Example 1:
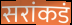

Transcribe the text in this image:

सरांकडं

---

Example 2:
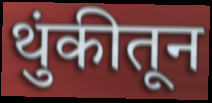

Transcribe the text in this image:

थुंकीतून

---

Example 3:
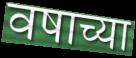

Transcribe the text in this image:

वषाच्या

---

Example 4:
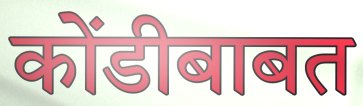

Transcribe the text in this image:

कोंडीबाबत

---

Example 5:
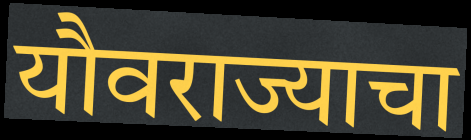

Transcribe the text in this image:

यौवराज्याचा